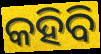
କହିବି